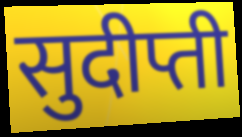
सुदीप्ती